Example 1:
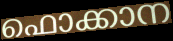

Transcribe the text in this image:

ഫൊക്കാന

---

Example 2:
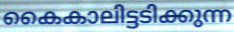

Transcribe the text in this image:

കൈകാലിട്ടടിക്കുന്ന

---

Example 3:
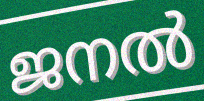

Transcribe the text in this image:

ജനൽ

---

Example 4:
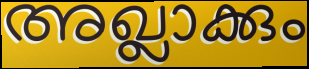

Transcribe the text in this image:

അഖ്ലാക്കും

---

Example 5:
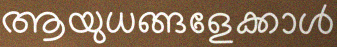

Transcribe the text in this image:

ആയുധങ്ങളേക്കാൾ